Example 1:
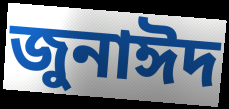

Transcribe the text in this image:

জুনাঈদ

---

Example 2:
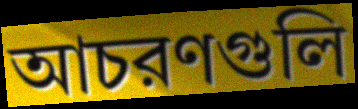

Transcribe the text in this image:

আচরণগুলি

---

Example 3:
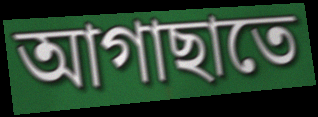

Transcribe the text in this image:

আগাছাতে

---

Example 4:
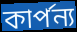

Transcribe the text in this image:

কার্পন্য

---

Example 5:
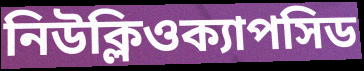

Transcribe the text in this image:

নিউক্লিওক্যাপসিড